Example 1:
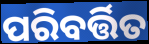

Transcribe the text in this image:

ପରିବର୍ତ୍ତିତ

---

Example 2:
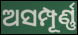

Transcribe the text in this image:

ଅସମ୍ପୂର୍ଣ୍ଣ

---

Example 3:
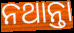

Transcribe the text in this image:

ନଥାନ୍ତା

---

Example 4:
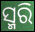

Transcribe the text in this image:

ସ୍ମରି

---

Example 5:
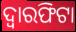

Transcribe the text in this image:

ଦ୍ୱାରଫିଟା